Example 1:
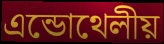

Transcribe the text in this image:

এন্ডোথেলীয়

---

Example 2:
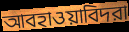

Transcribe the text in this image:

আবহাওয়াবিদরা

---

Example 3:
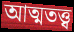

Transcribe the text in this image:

আত্মতত্ত্ব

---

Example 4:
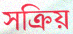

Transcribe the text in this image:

সক্রিয়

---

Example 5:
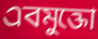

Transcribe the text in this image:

এবমুক্তো